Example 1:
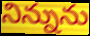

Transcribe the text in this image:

నిన్నును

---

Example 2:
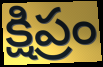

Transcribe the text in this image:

క్షిప్రం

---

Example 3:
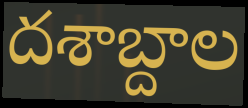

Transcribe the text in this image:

దశాబ్దాల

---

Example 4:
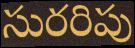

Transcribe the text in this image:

సురరిపు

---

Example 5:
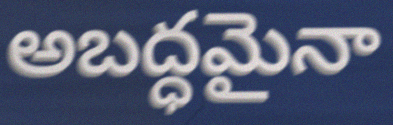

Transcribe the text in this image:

అబద్ధమైనా